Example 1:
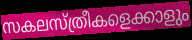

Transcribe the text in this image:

സകലസ്ത്രീകളെക്കാളും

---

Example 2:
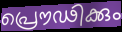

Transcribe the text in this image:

പ്രൌഢിക്കും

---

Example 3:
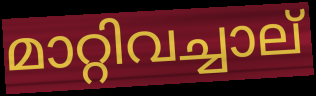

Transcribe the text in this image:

മാറ്റിവച്ചാല്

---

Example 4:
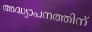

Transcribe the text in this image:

അദ്ധ്യാപനത്തിന്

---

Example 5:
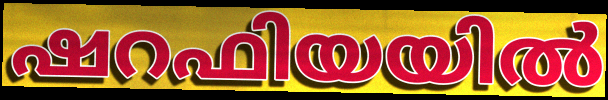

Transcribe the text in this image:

ഷറഫിയയിൽ